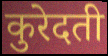
कुरेदती